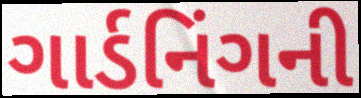
ગાર્ડનિંગની